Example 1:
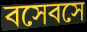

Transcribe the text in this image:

বসেবসে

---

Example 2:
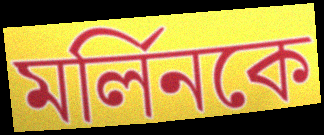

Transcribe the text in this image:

মর্লিনকে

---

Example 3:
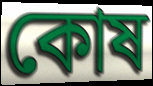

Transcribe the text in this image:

কোষ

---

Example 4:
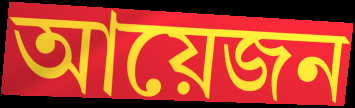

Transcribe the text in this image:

আয়েজন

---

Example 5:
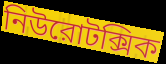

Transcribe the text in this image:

নিউরোটক্সিক